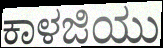
ಕಾಳಜಿಯು